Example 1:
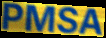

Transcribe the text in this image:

PMSA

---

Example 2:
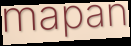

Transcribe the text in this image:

mapan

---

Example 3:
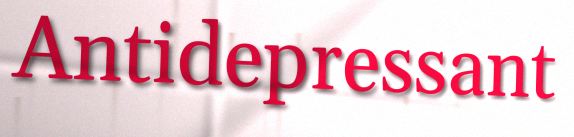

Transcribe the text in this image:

Antidepressant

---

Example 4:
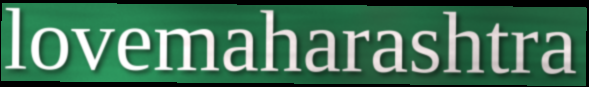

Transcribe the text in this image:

lovemaharashtra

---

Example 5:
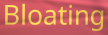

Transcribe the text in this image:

Bloating